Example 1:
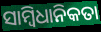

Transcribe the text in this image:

ସାମ୍ବିଧାନିକତା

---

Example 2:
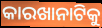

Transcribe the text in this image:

କାରଖାନାଟିକୁ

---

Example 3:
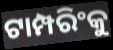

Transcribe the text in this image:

ଟାମ୍ପରିଂକୁ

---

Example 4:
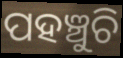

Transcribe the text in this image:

ପହଞ୍ଚୁଚି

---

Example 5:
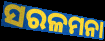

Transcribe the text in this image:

ସରଳମନା